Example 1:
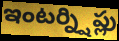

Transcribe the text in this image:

ఇంటర్న్షిప్లు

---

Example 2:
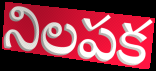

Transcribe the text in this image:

నిలపక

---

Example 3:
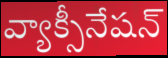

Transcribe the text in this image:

వ్యాక్సీనేషన్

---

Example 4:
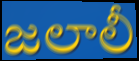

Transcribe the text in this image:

జలాలీ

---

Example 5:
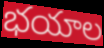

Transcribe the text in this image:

భయాల